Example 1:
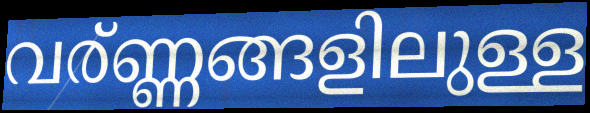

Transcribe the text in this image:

വര്ണ്ണങ്ങളിലുള്ള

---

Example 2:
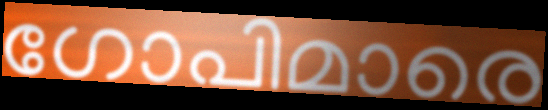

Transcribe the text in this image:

ഗോപിമാരെ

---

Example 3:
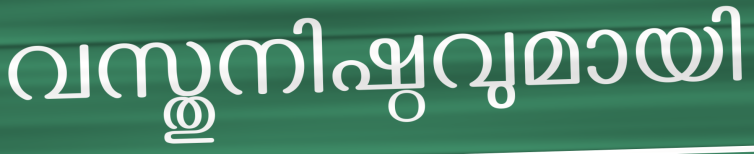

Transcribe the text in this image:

വസ്തുനിഷ്ഠവുമായി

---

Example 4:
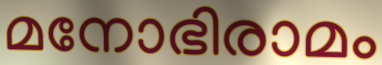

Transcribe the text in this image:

മനോഭിരാമം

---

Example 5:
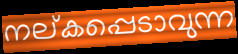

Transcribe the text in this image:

നല്കപ്പെടാവുന്ന